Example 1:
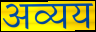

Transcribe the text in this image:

अव्यय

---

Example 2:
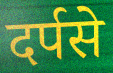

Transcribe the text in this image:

दर्पसे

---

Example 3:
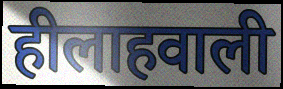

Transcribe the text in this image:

हीलाहवाली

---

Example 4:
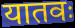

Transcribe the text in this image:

यातवः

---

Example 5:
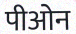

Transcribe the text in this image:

पीओन